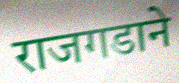
राजगडाने